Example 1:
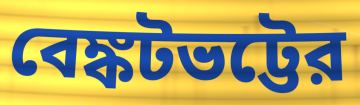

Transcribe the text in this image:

বেঙ্কটভট্টের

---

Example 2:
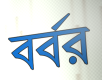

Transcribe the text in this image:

বর্বর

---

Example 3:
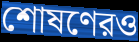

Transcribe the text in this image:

শোষণেরও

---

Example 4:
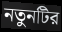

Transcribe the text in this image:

নতুনটির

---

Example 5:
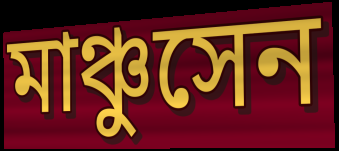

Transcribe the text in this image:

মাঞ্চুসেন